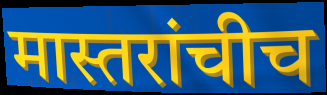
मास्तरांचीच